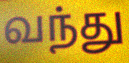
வந்து